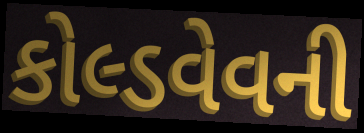
કોલ્ડવેવની